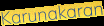
Karunakaran